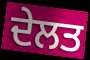
ਦੇਲਤ